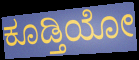
ಕೂಡ್ತಿಯೋ